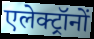
एलेक्ट्रॉनों